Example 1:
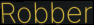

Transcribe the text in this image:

Robber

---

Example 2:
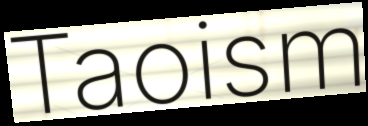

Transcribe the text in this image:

Taoism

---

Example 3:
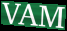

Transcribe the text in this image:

VAM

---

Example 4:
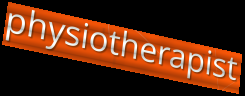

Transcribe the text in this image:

physiotherapist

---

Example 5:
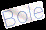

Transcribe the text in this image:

Bole